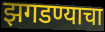
झगडण्याचा